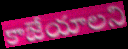
కాజేయాలని